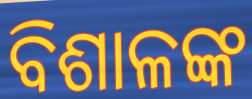
ବିଶାଳଙ୍କ